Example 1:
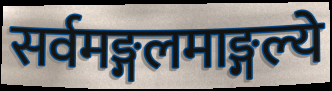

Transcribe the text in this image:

सर्वमङ्गलमाङ्गल्ये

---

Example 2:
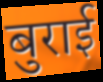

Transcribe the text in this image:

बुराई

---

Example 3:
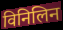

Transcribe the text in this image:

विनिलिन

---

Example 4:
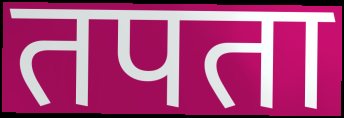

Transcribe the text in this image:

तपता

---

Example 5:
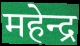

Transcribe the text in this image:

महेन्‍द्र